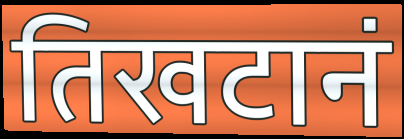
तिखटानं